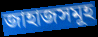
জাহাজসমূহ